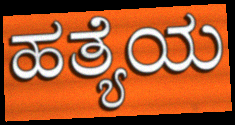
ಹತ್ಯೆಯ